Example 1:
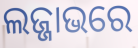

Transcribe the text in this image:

ଲଜ୍ଜାଭରେ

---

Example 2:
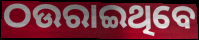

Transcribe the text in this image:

ଠଉରାଇଥିବେ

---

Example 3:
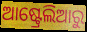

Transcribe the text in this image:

ଆଷ୍ଟ୍ରେଲିଆରୁ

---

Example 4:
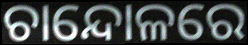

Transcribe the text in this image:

ଚାନ୍ଦୋଳରେ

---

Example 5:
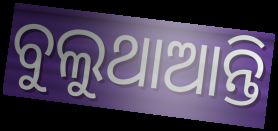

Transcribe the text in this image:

ବୁଲୁଥାଆନ୍ତି